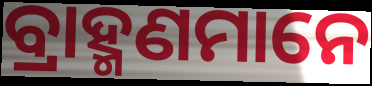
ବ୍ରାହ୍ମଣମାନେ